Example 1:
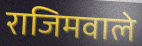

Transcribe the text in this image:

राजिमवाले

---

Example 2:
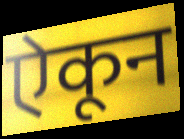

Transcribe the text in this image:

ऐकून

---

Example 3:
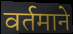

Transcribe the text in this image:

वर्तमाने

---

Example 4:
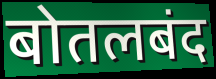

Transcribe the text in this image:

बोतलबंद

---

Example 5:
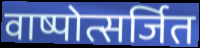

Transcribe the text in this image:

वाष्पोत्सर्जित